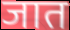
जात